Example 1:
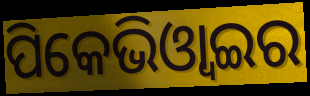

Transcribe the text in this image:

ପିକେଭିଓ୍ବାଇର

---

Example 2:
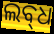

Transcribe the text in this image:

ଲବ୍‌ଧ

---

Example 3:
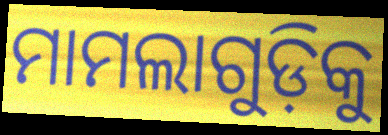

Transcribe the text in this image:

ମାମଲାଗୁଡ଼ିକୁ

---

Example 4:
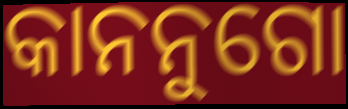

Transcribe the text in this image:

କାନନୁଗୋ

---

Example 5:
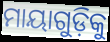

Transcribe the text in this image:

ମାୟାଗୁଡ଼ିକୁ